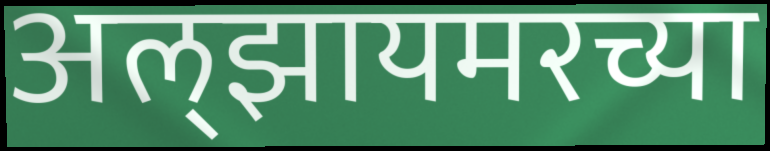
अल्झायमरच्या